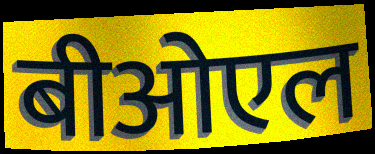
बीओएल